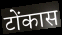
टोंकास